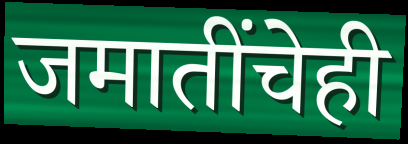
जमातींचेही